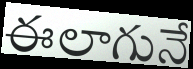
ఈలాగునే